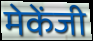
मेकेंजी